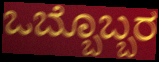
ಒಬ್ಬೊಬ್ಬರ